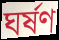
ঘৰ্ষণ